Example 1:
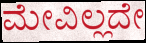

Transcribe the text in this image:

ಮೇವಿಲ್ಲದೇ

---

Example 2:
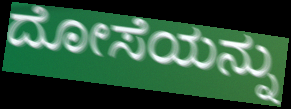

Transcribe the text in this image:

ದೋಸೆಯನ್ನು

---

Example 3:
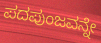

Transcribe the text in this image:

ಪದಪುಂಜವನ್ನೇ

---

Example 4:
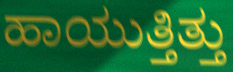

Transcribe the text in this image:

ಹಾಯುತ್ತಿತ್ತು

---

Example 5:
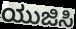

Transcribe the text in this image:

ಯುಜಿಸಿ